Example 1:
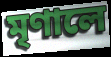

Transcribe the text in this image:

মৃণালে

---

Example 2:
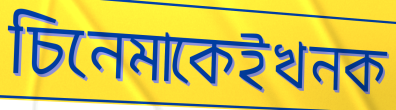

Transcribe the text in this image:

চিনেমাকেইখনক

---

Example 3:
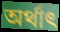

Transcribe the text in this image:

অৰ্থাৎ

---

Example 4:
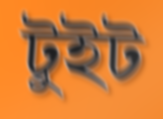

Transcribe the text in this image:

টুইট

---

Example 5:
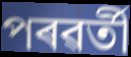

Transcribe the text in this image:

পৰৱৰ্তী